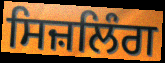
ਸਿਜ਼ਲਿੰਗ